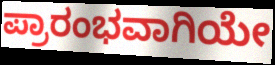
ಪ್ರಾರಂಭವಾಗಿಯೇ